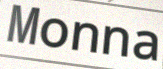
Monna